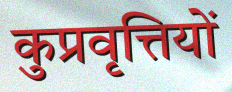
कुप्रवृत्तियों